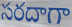
సరదాగా